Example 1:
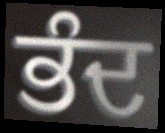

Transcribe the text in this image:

ਭੰਦ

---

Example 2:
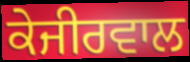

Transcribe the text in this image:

ਕੇਜੀਰਵਾਲ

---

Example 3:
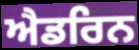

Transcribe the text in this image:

ਐਡਰਿਨ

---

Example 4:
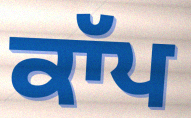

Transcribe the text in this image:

ਕਾੱਪ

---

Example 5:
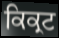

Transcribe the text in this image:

ਕਿਕ੍ਰਟ